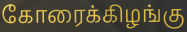
கோரைக்கிழங்கு